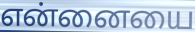
என்னையை